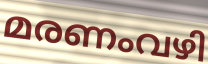
മരണംവഴി